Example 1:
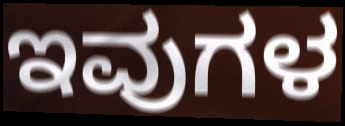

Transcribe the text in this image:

ಇವುಗಳ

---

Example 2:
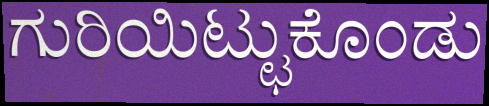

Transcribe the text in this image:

ಗುರಿಯಿಟ್ಟುಕೊಂಡು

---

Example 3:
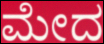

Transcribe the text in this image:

ಮೇದ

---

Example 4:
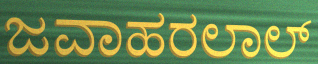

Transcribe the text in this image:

ಜವಾಹರಲಾಲ್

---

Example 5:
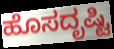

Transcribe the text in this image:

ಹೊಸದೃಷ್ಟಿ